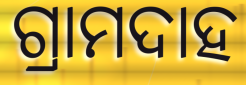
ଗ୍ରାମଦାହ